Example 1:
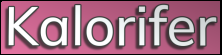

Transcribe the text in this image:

Kalorifer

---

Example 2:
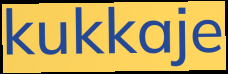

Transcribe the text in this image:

kukkaje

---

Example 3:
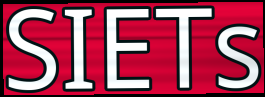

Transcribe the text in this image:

SIETs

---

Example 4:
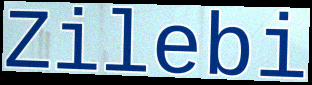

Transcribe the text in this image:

Zilebi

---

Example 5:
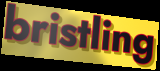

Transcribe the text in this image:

bristling